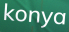
konya